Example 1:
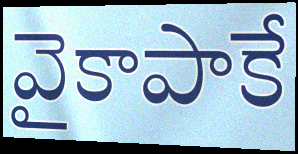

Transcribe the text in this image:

వైకాపాకే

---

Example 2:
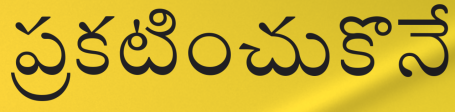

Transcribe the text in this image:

ప్రకటించుకొనే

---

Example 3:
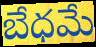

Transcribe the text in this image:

బేధమే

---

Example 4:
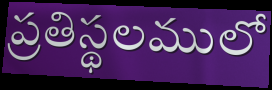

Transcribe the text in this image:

ప్రతిస్థలములో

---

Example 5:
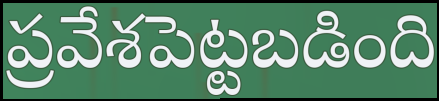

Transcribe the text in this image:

ప్రవేశపెట్టబడింది